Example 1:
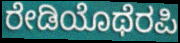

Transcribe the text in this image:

ರೇಡಿಯೊಥೆರಪಿ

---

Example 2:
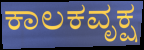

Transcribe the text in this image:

ಕಾಲಕವೃಕ್ಷ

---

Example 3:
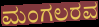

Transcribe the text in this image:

ಮಂಗಲರವ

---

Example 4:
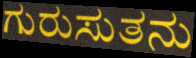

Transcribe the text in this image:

ಗುರುಸುತನು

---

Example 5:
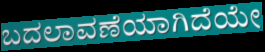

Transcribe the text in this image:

ಬದಲಾವಣೆಯಾಗಿದೆಯೇ